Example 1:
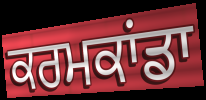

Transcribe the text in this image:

ਕਰਮਕਾਂਡਾ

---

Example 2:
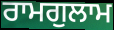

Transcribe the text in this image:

ਰਾਮਗੁਲਾਮ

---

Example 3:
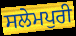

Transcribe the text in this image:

ਸਲੇਮਪੁਰੀ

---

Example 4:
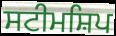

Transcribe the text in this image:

ਸਟੀਮਸ਼ਿਪ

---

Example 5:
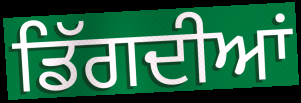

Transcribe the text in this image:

ਡਿੱਗਦੀਆਂ